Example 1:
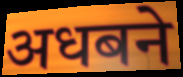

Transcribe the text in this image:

अधबने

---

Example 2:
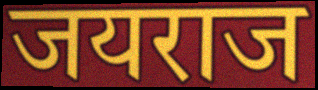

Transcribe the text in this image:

जयराज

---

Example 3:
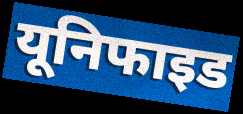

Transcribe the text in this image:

यूनिफाइड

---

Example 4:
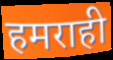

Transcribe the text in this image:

हमराही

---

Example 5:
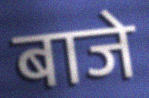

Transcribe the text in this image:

बाजे